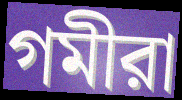
গমীরা